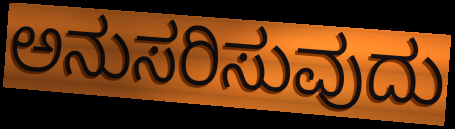
ಅನುಸರಿಸುವುದು